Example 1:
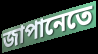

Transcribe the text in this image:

জাপানেতে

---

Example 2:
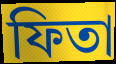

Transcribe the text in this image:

ফিতা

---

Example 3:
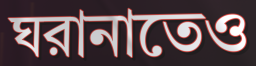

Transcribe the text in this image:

ঘরানাতেও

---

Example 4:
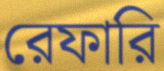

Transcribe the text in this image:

রেফারি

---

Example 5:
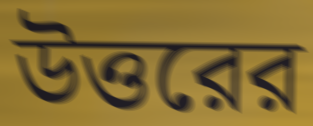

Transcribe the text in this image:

উত্তরের